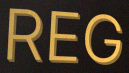
REG